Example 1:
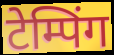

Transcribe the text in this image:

टेम्पिंग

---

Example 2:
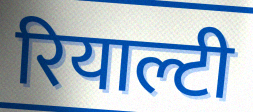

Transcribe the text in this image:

रियाल्टी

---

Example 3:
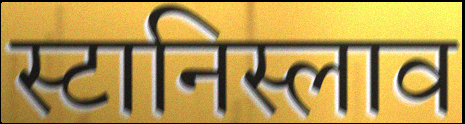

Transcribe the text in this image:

स्टानिस्लाव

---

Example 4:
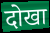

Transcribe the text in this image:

दोखा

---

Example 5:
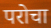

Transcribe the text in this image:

परोचा